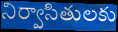
నిర్వాసితులకు